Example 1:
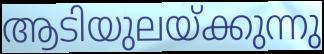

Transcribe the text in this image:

ആടിയുലയ്ക്കുന്നു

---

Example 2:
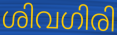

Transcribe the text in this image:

ശിവഗിരി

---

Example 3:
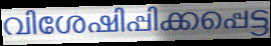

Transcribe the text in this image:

വിശേഷിപ്പിക്കപ്പെട്ട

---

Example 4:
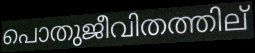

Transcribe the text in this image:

പൊതുജീവിതത്തില്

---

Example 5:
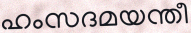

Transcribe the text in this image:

ഹംസദമയന്തീ